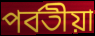
পৰ্বতীয়া